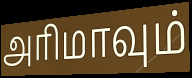
அரிமாவும்